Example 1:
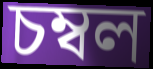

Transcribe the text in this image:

চম্বল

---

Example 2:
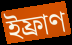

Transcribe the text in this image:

ইফ্ৰাণ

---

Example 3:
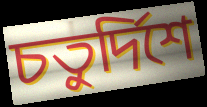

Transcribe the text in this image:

চতুৰ্দিশে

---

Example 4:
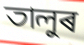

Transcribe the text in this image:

তালুৰ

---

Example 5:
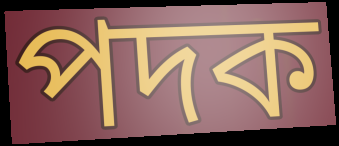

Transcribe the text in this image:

পদক